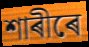
শাৰীৰে